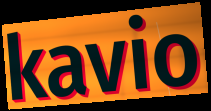
kavio